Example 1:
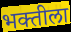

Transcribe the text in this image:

भक्तीला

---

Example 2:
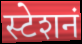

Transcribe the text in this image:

स्टेशनं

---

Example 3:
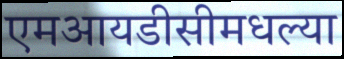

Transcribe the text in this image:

एमआयडीसीमधल्या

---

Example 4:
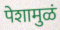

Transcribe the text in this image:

पेशामुळं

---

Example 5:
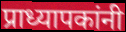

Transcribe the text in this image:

प्राध्यापकांनी